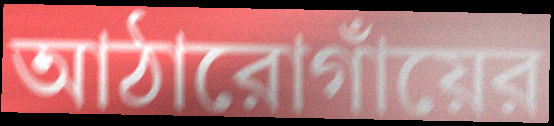
আঠারোগাঁয়ের